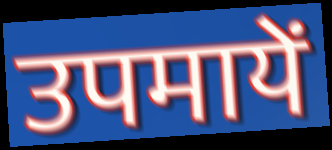
उपमायें